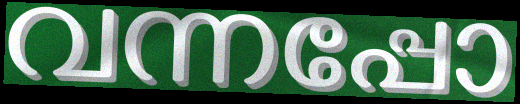
വന്നപ്പോ